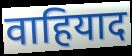
वाहियाद